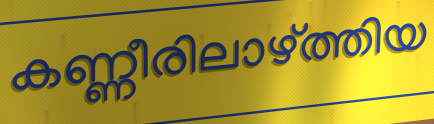
കണ്ണീരിലാഴ്ത്തിയ